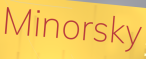
Minorsky